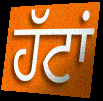
ਹੱਟਾਂ